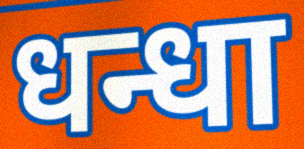
धन्धा